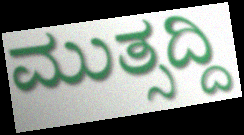
ಮುತ್ಸದ್ದಿ